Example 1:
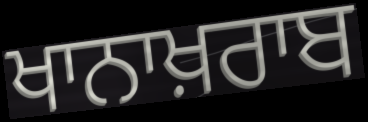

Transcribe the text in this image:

ਖਾਨਾਖ਼ਰਾਬ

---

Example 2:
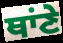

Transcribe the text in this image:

ਥਾਂਣੇ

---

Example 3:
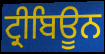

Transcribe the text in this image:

ਟ੍ਰੀਬਿਊਨ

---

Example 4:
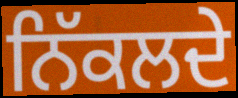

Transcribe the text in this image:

ਨਿੱਕਲਦੇ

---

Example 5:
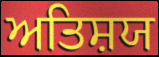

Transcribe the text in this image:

ਅਤਿਸ਼ਯ